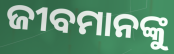
ଜୀବମାନଙ୍କୁ